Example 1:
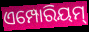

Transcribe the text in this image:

ଏମ୍ପୋରିୟମ୍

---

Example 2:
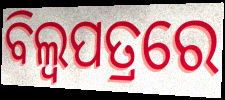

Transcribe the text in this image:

ବିଲ୍ଵପତ୍ରରେ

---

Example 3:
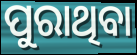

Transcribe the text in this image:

ପୁରାଥିବା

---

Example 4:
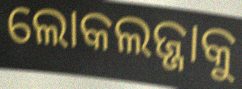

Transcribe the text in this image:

ଲୋକଲଜ୍ଜାକୁ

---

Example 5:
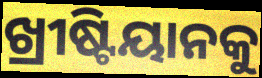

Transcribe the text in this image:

ଖ୍ରୀଷ୍ଟିୟାନକୁ